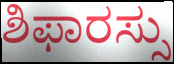
ಶಿಫಾರಸ್ಸು